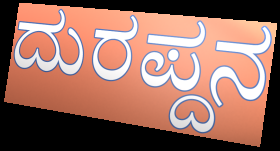
ದುರಪ್ದನ